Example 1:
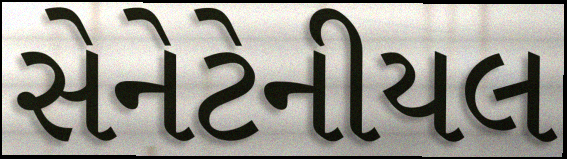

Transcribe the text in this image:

સેનેટેનીયલ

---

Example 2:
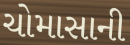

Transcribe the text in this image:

ચોમાસાની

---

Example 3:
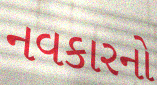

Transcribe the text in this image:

નવકારનો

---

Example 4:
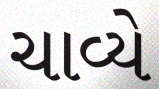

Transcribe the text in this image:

ચાવ્યે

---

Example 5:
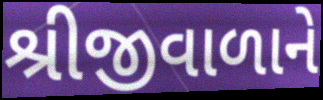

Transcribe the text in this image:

શ્રીજીવાળાને